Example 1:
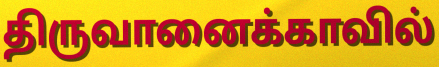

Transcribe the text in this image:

திருவானைக்காவில்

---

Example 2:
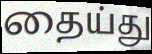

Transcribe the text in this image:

தைய்து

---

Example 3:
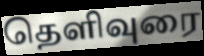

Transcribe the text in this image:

தெளிவுரை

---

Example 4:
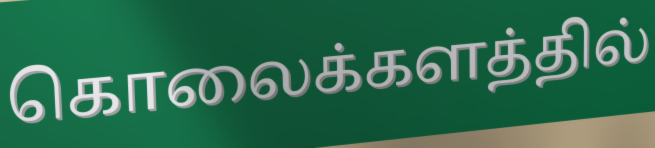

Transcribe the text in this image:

கொலைக்களத்தில்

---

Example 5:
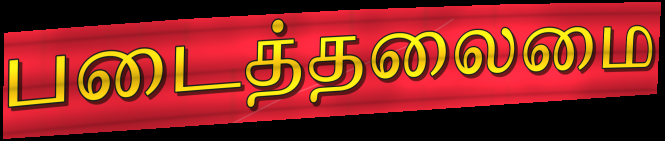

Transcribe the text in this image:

படைத்தலைமை